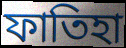
ফাতিহা